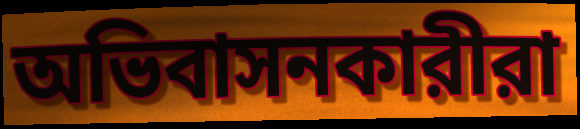
অভিবাসনকারীরা